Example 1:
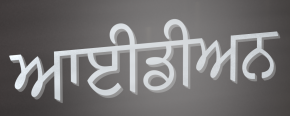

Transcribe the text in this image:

ਆਈਡੀਅਨ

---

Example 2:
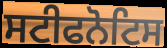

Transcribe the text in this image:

ਸਟੀਫਨੋਟਿਸ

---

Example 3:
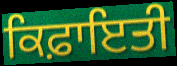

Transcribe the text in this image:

ਕਿਫ਼ਾਇਤੀ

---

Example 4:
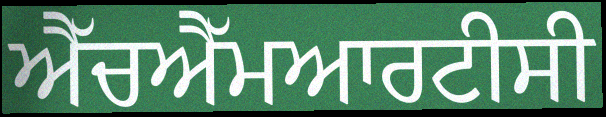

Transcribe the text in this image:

ਐੱਚਐੱਮਆਰਟੀਸੀ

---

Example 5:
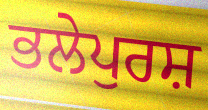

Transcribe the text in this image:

ਭਲੇਪੁਰਸ਼